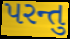
પરન્તુ